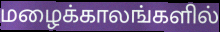
மழைக்காலங்களில்